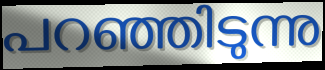
പറഞ്ഞിടുന്നു